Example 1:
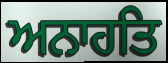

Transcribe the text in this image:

ਅਨਾਹਤਿ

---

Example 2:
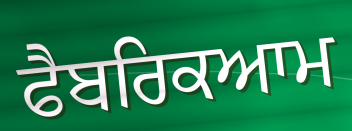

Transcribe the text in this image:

ਫੈਬਰਿਕਆਮ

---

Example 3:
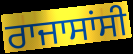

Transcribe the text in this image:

ਰਾਜਾਸਾਂਸੀ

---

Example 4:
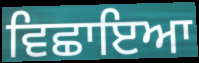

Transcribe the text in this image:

ਵਿਛਾਇਆ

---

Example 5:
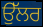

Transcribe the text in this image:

ਉੱਲਰ